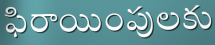
ఫిరాయింపులకు